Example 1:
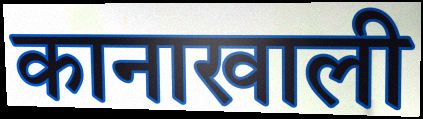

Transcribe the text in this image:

कानाखाली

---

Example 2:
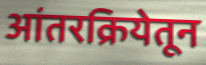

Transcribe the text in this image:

आंतरक्रियेतून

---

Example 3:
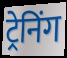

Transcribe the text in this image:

ट्रेनिंग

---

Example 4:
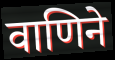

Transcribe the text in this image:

वाणिने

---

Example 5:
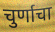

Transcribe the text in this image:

चुर्णाचा